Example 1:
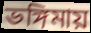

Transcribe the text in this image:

ভঙ্গিমায়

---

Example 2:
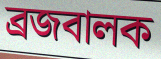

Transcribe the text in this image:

ব্রজবালক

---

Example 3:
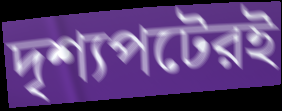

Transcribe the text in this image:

দৃশ্যপটেরই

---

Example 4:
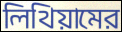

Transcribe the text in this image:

লিথিয়ামের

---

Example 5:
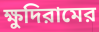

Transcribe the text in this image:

ক্ষুদিরামের